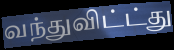
வந்துவிட்ட்து